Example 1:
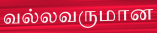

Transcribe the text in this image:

வல்லவருமான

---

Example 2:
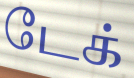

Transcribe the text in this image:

டேக்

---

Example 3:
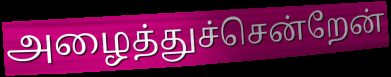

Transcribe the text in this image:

அழைத்துச்சென்றேன்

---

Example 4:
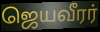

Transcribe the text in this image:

ஜெயவீரர்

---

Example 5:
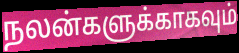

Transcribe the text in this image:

நலன்களுக்காகவும்